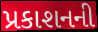
પ્રકાશનની